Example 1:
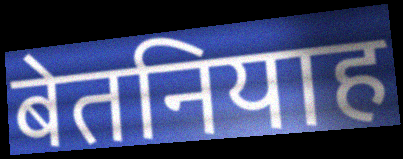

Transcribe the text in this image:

बेतनियाह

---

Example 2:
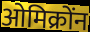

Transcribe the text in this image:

ओमिक्रोंन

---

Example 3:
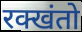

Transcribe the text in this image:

रक्खंतो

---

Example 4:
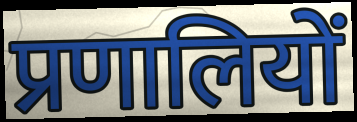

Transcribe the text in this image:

प्रणालियों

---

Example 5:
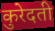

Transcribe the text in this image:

कुरेदती